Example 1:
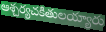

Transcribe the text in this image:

ఆశ్చర్యచకితులయ్యారు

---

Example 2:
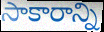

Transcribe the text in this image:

సాకారాన్ని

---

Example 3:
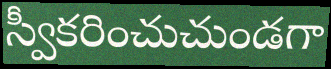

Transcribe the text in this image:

స్వీకరించుచుండగా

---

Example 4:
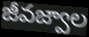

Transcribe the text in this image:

జీవజ్వాల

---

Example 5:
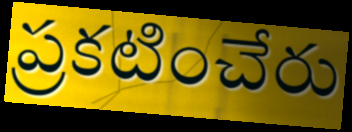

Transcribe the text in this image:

ప్రకటించేరు